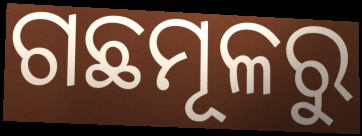
ଗଛମୂଳରୁ